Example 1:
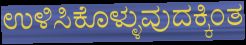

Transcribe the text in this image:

ಉಳಿಸಿಕೊಳ್ಳುವುದಕ್ಕಿಂತ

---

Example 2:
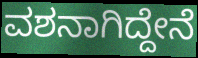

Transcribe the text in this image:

ವಶನಾಗಿದ್ದೇನೆ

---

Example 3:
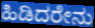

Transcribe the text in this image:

ಹಿಡಿದರೇನು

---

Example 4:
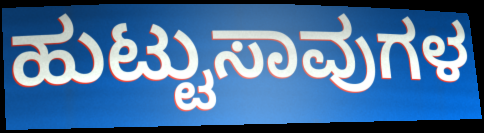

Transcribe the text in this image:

ಹುಟ್ಟುಸಾವುಗಳ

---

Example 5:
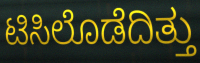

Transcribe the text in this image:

ಟಿಸಿಲೊಡೆದಿತ್ತು